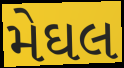
મેઘલ